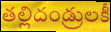
తల్లిదండ్రులకీ